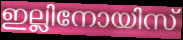
ഇല്ലിനോയിസ്